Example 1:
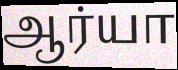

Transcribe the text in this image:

ஆர்யா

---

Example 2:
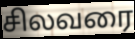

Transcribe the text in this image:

சிலவரை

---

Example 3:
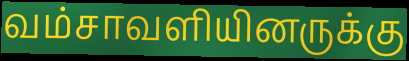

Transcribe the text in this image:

வம்சாவளியினருக்கு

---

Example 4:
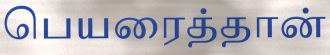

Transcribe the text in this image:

பெயரைத்தான்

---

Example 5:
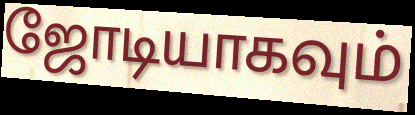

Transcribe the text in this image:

ஜோடியாகவும்